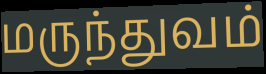
மருந்துவம்